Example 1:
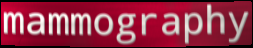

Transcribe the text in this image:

mammography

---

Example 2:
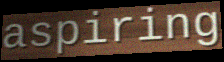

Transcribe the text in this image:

aspiring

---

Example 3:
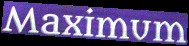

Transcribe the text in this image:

Maximum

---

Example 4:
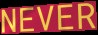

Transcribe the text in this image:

NEVER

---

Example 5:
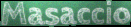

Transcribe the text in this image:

Masaccio